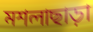
মশলাছাড়া